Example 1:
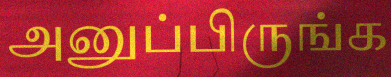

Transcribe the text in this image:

அனுப்பிருங்க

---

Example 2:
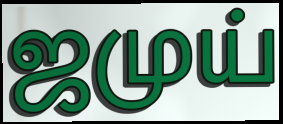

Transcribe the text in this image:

ஜமுய்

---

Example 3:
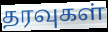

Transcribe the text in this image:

தரவுகள்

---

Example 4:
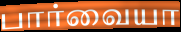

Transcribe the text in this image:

பார்வையா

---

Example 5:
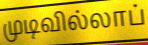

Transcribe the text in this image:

முடிவில்லாப்